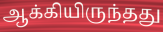
ஆக்கியிருந்தது